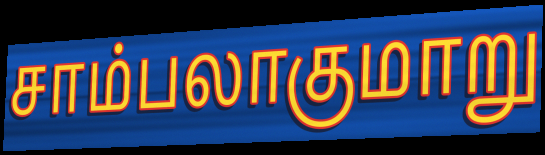
சாம்பலாகுமாறு